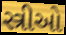
સ્ત્રીઓ